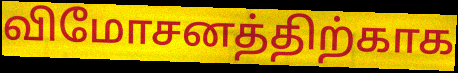
விமோசனத்திற்காக